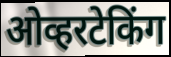
ओव्हरटेकिंग